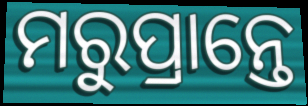
ମରୁପ୍ରାନ୍ତେ